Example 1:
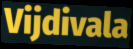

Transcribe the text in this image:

Vijdivala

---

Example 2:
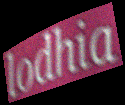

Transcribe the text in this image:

lodhia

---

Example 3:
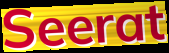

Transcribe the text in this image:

Seerat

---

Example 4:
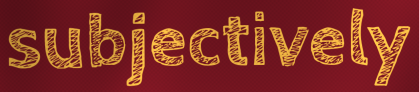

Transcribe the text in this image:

subjectively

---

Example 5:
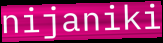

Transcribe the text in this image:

nijaniki